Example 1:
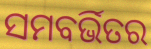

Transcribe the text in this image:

ସମବର୍ଭିତର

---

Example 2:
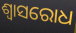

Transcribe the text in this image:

ଶ୍ୱାସରୋଧ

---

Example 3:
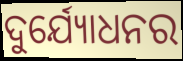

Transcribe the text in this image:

ଦୁର୍ଯ୍ଯୋଧନର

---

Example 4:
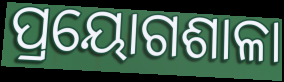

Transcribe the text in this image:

ପ୍ରୟୋଗଶାଳା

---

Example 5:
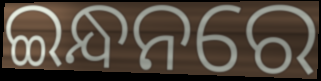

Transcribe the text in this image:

ଇନ୍ଧନରେ